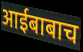
आईबाबाच